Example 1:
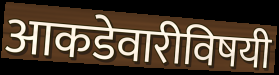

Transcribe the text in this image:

आकडेवारीविषयी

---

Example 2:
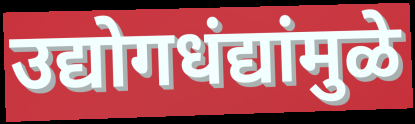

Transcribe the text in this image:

उद्योगधंद्यांमुळे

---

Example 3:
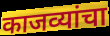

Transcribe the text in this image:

काजव्यांचा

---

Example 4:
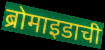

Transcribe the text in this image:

ब्रोमाइडाची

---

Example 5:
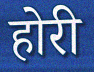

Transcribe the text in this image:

होरी